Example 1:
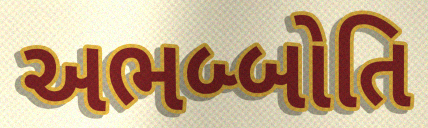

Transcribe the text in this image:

અભબ્બોતિ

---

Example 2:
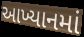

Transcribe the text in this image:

આખ્યાનમાં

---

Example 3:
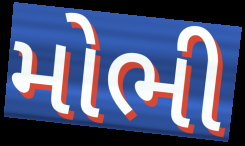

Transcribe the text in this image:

મોભી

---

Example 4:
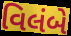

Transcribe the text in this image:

વિલંબે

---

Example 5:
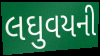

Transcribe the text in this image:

લઘુવયની